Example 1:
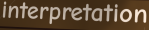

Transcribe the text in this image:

interpretation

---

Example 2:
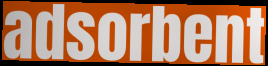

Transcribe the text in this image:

adsorbent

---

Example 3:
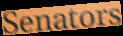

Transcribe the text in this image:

Senators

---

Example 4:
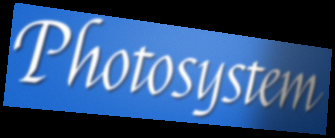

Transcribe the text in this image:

Photosystem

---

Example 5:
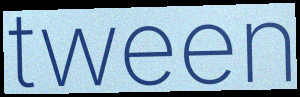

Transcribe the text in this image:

tween